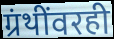
ग्रंथींवरही